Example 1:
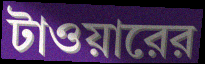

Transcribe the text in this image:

টাওয়ারের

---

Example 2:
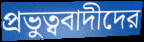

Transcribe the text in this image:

প্রভুত্ববাদীদের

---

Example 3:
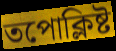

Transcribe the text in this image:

তপোক্লিষ্ট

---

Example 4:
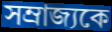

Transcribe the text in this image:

সম্রাজ্যকে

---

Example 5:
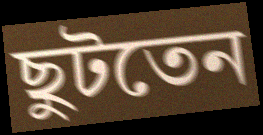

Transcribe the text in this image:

ছুটতেন